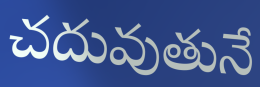
చదువుతునే